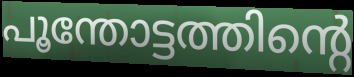
പൂന്തോട്ടത്തിന്റെ